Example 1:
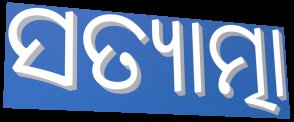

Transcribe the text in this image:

ସତ୍ୟାତ୍ମା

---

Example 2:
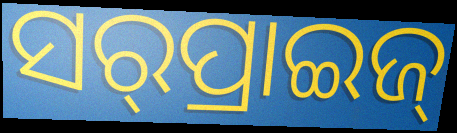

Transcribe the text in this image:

ସର୍‌ପ୍ରାଇଜ୍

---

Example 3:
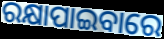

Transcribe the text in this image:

ରକ୍ଷାପାଇବାରେ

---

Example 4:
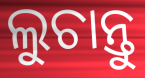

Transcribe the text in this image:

ଲୁଚାନ୍ତୁ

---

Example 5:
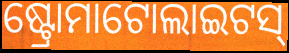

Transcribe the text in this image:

ଷ୍ଟ୍ରୋମାଟୋଲାଇଟସ୍